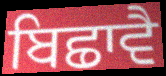
ਬਿਛਾਵੈ